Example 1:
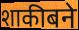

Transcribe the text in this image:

शाकीबने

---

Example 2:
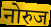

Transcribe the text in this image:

नोरुज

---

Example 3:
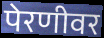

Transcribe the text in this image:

पेरणीवर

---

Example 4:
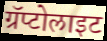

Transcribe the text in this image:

ग्रॅप्टोलाइट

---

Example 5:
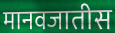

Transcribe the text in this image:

मानवजातीस